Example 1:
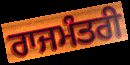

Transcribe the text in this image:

ਰਾਜਮੰਤਰੀ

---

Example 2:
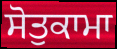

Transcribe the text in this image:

ਸੋਤੁਕਾਮਾ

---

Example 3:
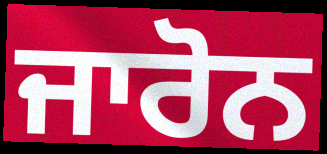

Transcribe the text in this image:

ਜਾਰੋਨ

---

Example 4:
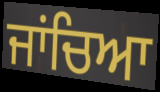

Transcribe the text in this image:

ਜਾਂਚਿਆ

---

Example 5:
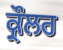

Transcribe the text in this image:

ਕ੍ਰੌਲਰ